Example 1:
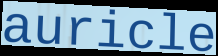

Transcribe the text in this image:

auricle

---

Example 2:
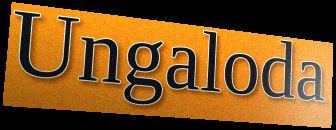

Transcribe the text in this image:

Ungaloda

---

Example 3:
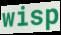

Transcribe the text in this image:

wisp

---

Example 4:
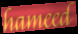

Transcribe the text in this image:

hameed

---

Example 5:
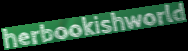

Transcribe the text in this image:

herbookishworld